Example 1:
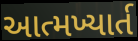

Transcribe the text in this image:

આત્મખ્યાર્ત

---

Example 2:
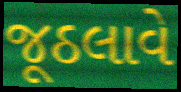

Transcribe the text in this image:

જૂઠલાવે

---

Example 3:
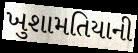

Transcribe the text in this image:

ખુશામતિયાની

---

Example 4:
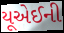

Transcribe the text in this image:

યૂએઈની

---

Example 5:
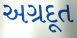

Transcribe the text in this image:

અગ્રદૂત